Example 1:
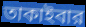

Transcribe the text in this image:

তাকাইবার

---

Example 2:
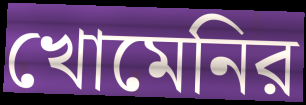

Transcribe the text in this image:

খোমেনির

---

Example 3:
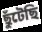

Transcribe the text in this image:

ছুঁটেছি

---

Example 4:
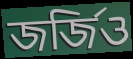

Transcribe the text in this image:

জর্জিও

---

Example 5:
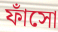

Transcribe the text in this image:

ফাঁসো